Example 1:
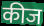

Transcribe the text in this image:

कीज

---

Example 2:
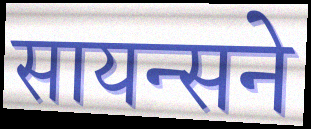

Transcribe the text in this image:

सायन्सने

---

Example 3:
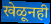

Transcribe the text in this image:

खेळूनही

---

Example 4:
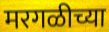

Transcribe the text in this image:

मरगळीच्या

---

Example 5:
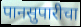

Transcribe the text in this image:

पानसुपारीचा